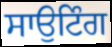
ਸਾਉਟਿੰਗ